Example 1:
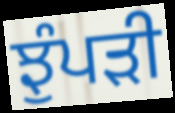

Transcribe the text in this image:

ਝੁੰਪੜੀ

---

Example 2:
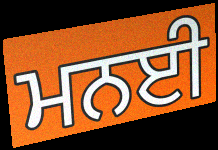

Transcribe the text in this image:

ਮਨਈ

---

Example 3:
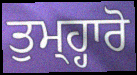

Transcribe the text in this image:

ਤੁਮ੍ਹ੍ਹਾਰੋ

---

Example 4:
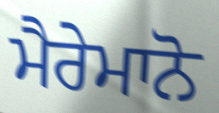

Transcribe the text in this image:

ਮੈਰੇਮਾਨੋ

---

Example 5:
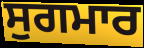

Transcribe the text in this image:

ਸੁਗਮਾਰ